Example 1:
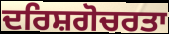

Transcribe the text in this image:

ਦਰਿਸ਼ਗੋਚਰਤਾ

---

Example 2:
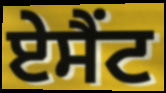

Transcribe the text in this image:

ਏਸੈਂਟ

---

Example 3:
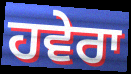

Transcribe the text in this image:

ਹਵੇਰਾ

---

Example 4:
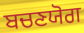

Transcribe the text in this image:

ਬਚਣਯੋਗ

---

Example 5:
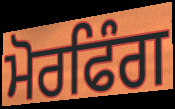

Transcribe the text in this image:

ਮੋਰਫਿੰਗ